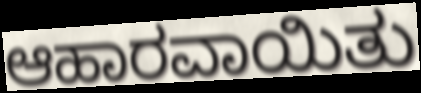
ಆಹಾರವಾಯಿತು